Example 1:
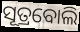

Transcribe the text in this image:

ସୂତ୍ରବୋଲି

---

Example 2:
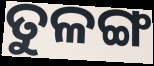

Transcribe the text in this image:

ତୁଳଙ୍ଗ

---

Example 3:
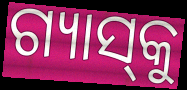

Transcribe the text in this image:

ଗ୍ୟାସ୍‌କୁ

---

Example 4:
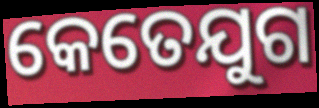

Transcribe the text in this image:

କେତେଯୁଗ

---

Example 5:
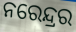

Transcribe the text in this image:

ନରେନ୍ଦ୍ରର